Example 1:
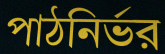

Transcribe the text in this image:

পাঠনির্ভর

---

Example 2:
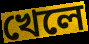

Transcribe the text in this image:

খেলে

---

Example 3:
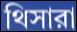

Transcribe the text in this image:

থিসারা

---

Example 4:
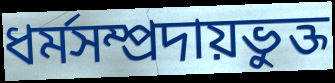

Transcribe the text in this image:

ধর্মসম্প্রদায়ভুক্ত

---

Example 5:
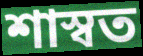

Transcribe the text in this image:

শাস্বত